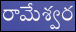
రామేశ్వర